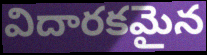
విదారకమైన